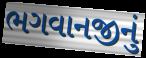
ભગવાનજીનું